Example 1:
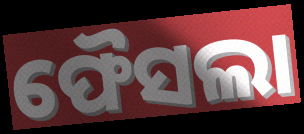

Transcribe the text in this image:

ଫୈସଲା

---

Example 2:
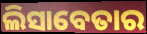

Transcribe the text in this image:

ଲିସାବେତାର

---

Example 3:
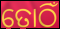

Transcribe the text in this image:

ତୋଠିଁ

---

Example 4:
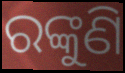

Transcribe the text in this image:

ରଙ୍କୁଣି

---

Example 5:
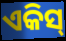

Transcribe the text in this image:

ଏକିସ୍